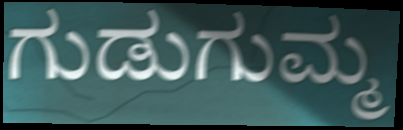
ಗುಡುಗುಮ್ಮ